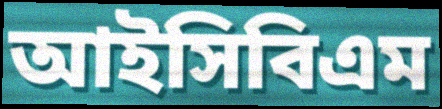
আইসিবিএম